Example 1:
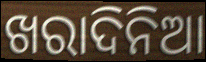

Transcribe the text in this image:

ଖରାଦିନିଆ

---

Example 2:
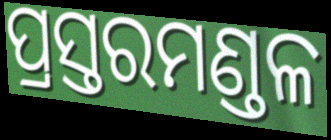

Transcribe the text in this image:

ପ୍ରସ୍ତରମଣ୍ଡଳ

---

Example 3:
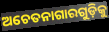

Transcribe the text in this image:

ଅଚେତନାଗାରଗୁଡ଼ିକୁ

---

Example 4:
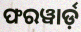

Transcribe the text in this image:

ଫରୱାର୍ଡ଼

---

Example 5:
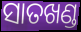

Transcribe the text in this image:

ସାତଖଣ୍ଡ